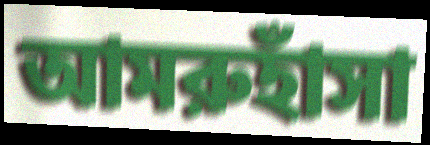
আমরুহাঁসা